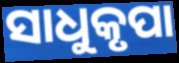
ସାଧୁକୃପା